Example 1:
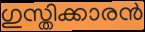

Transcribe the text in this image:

ഗുസ്തിക്കാരൻ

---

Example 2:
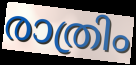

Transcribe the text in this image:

രാത്രിം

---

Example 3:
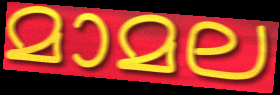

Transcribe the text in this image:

മാമല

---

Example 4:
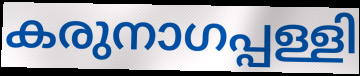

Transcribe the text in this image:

കരുനാഗപ്പള്ളി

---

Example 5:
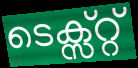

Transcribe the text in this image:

ടെക്സ്റ്റ്